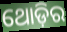
ଥୋଡ଼ିର